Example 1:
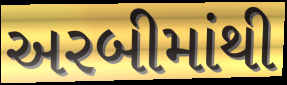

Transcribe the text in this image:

અરબીમાંથી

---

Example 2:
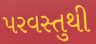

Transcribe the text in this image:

પરવસ્તુથી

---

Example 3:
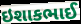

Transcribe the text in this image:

ઇશાકભાઈ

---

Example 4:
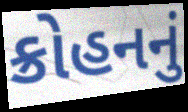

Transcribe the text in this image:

ક્રોહનનું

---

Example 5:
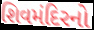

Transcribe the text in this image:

શિવમંદિરનો